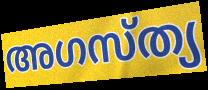
അഗസ്ത്യ